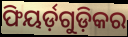
ଫିୟର୍ଡ଼ଗୁଡ଼ିକର